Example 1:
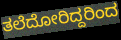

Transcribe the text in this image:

ತಲೆದೋರಿದ್ದರಿಂದ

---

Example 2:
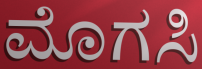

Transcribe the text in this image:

ಮೊಗಸಿ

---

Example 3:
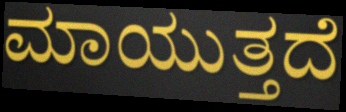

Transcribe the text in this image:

ಮಾಯುತ್ತದೆ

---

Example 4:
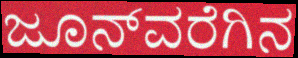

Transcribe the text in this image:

ಜೂನ್‌ವರೆಗಿನ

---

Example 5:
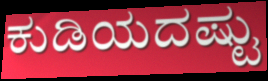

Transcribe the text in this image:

ಕುಡಿಯದಷ್ಟು